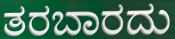
ತರಬಾರದು